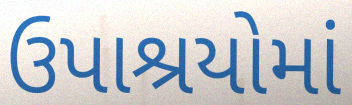
ઉપાશ્રયોમાં